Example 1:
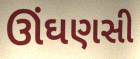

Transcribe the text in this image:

ઊંઘણસી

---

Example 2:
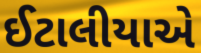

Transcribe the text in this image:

ઈટાલીયાએ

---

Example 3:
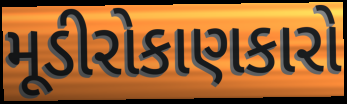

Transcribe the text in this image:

મૂડીરોકાણકારો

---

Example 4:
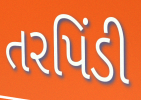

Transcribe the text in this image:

તરપિંડી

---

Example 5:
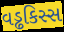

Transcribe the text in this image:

વડ્ઢકિસ્સ